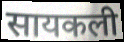
सायकली